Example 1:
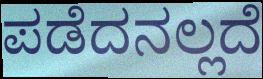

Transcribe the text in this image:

ಪಡೆದನಲ್ಲದೆ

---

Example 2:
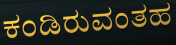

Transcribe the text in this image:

ಕಂಡಿರುವಂತಹ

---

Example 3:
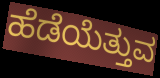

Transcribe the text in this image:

ಹೆಡೆಯೆತ್ತುವ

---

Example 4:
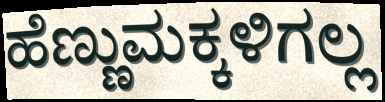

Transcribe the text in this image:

ಹೆಣ್ಣುಮಕ್ಕಳಿಗಲ್ಲ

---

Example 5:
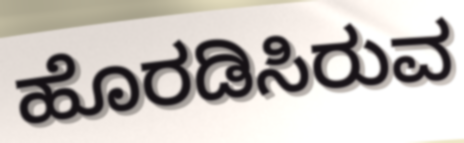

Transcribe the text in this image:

ಹೊರಡಿಸಿರುವ